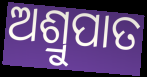
ଅଶ୍ରୁପାତ